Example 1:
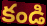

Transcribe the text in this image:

కండి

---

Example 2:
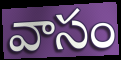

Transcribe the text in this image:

వాసం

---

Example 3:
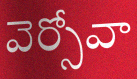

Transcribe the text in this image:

వెర్సోవా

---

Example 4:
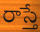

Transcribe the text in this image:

రాస్తే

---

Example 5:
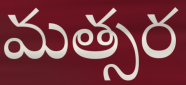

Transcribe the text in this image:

మత్సర